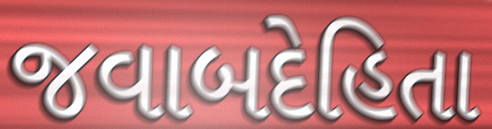
જવાબદેહિતા